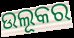
ଉଲୂକର